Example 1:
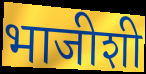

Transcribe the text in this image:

भाजीशी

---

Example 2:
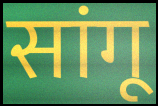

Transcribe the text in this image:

सांगू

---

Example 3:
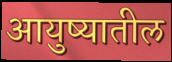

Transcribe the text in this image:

आयुष्यातील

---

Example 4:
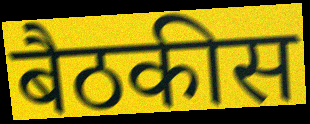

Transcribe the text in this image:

बैठकीस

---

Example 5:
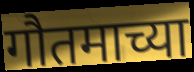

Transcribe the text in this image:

गौतमाच्या